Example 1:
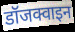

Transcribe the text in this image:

डॉजक्वाइन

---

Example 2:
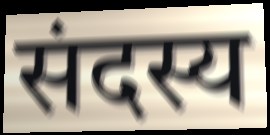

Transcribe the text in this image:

संदस्य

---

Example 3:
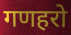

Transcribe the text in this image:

गणहरो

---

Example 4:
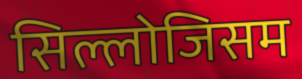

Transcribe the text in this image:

सिल्लोजिसम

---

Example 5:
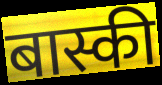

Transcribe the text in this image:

बास्की